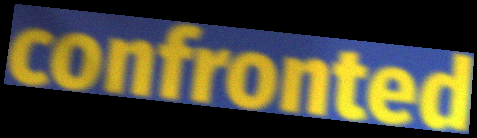
confronted